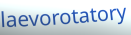
laevorotatory